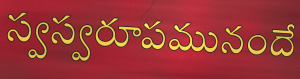
స్వస్వరూపమునందే